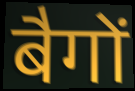
बैगों